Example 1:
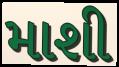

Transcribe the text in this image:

માશી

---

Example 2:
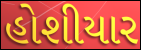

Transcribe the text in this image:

હોશીયાર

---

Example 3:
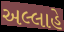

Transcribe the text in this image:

અલ્લાહે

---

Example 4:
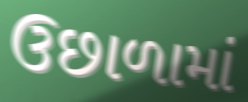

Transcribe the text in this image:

ઉછાળામાં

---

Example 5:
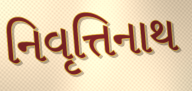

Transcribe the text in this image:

નિવૃત્તિનાથ